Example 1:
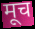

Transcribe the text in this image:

मूच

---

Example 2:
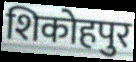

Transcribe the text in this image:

शिकोहपुर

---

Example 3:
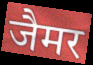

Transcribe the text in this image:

जैमर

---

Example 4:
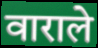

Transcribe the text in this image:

वाराले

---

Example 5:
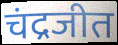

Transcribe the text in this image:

चंद्रजीत